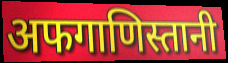
अफगाणिस्तानी